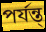
পর্যন্ত্